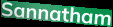
Sannatham